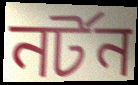
নৰ্টন